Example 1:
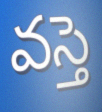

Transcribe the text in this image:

వస్తె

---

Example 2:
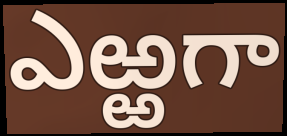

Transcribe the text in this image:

ఎఱ్ఱగా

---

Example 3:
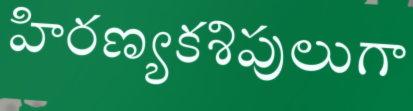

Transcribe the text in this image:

హిరణ్యకశిపులుగా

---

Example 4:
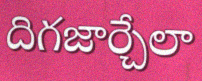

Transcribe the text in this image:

దిగజార్చేలా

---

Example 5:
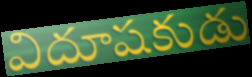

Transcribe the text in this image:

విదూషకుడు